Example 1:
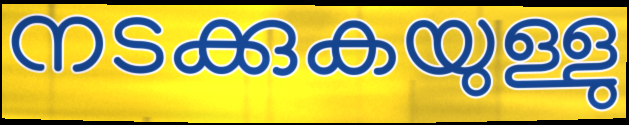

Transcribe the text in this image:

നടക്കുകയുള്ളു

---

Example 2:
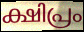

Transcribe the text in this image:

ക്ഷിപ്രം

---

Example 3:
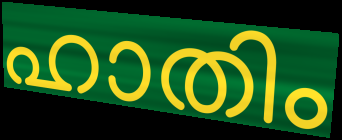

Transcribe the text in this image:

ഹാതിം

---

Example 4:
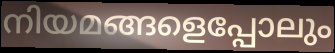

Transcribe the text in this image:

നിയമങ്ങളെപ്പോലും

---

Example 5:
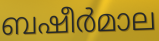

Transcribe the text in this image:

ബഷീർമാല